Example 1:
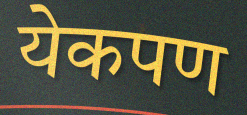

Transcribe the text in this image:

येकपण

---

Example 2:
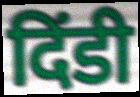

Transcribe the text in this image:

दिंडी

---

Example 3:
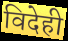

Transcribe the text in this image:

विदेही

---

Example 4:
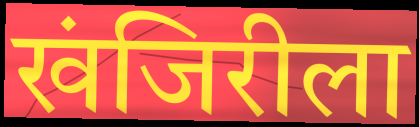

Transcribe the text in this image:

खंजिरीला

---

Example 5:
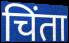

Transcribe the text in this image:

चिंता